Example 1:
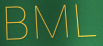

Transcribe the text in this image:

BML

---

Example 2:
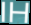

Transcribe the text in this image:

IH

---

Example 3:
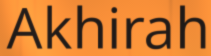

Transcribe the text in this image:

Akhirah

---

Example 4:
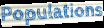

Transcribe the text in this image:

Populations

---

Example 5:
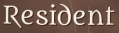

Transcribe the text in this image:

Resident